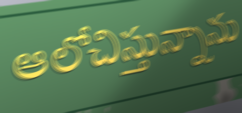
ఆలోచిస్తున్నాను